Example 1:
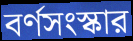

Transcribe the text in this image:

বর্ণসংস্কার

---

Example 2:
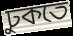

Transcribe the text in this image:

ঢুকতে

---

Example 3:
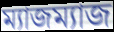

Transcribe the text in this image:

ম্যাজম্যাজ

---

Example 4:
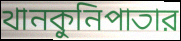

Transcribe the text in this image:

থানকুনিপাতার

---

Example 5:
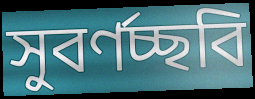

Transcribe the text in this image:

সুবর্ণচ্ছবি